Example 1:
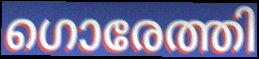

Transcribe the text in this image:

ഗൊരേത്തി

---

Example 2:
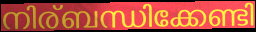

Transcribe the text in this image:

നിര്ബന്ധിക്കേണ്ടി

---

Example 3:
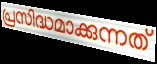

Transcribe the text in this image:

പ്രസിദ്ധമാക്കുന്നത്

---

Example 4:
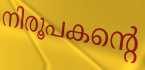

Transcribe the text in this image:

നിരൂപകന്റെ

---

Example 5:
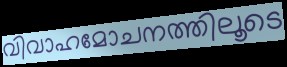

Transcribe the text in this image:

വിവാഹമോചനത്തിലൂടെ